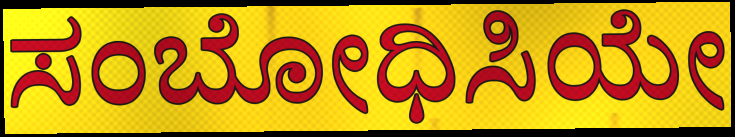
ಸಂಬೋಧಿಸಿಯೇ